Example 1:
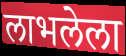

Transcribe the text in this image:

लाभलेला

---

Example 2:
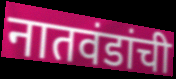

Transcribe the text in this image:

नातवंडांची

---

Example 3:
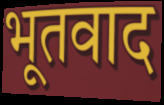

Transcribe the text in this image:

भूतवाद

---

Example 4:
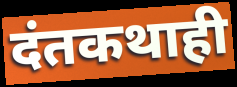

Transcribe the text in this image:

दंतकथाही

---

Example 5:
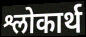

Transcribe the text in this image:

श्लोकार्थ